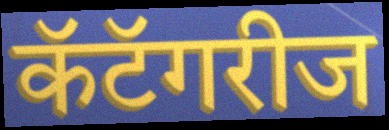
कॅटॅगरीज